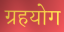
ग्रहयोग